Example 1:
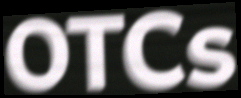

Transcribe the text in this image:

OTCs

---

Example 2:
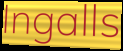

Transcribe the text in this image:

Ingalls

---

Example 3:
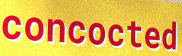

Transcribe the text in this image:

concocted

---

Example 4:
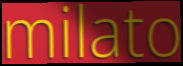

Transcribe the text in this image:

milato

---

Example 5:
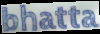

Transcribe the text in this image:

bhatta